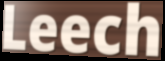
Leech